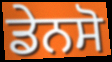
ਡੇਨਸੋ